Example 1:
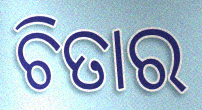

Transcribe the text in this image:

ଚିତାର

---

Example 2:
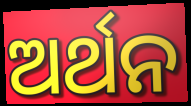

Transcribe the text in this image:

ଅର୍ଥନ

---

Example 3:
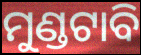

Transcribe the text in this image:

ମୁଣ୍ଡଟାବି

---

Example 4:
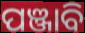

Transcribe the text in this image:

ପଞ୍ଜାବି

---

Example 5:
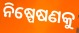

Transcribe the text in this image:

ନିଷ୍ପେଷଣକୁ